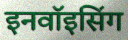
इनवॉइसिंग